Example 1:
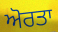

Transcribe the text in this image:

ਅੋਰਤਾ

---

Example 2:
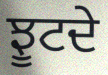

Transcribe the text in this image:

ਝੂਟਦੇ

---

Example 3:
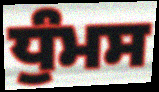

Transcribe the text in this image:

ਧੁੰਮਸ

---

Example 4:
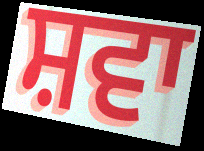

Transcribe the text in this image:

ਸ਼ਵਾ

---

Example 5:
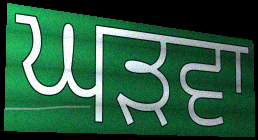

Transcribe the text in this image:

ਘੜਵਾ